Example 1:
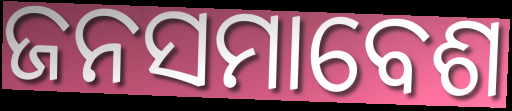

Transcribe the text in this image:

ଜନସମାବେଶ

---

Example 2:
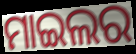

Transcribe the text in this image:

ମାଇଲର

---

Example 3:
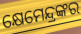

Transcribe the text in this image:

କ୍ଷେମେନ୍ଦ୍ରଙ୍କର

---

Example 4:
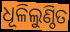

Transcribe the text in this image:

ଧୂଳିଲୁଣ୍ଠିତ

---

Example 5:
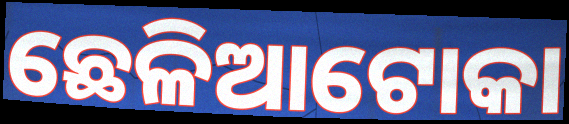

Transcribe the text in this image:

ଛେଳିଆଟୋକା